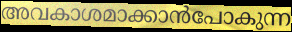
അവകാശമാക്കാൻപോകുന്ന